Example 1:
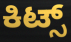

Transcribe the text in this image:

ಕಿಟ್ಸ್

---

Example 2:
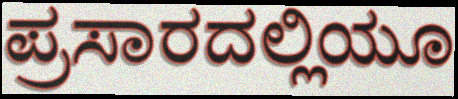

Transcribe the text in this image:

ಪ್ರಸಾರದಲ್ಲಿಯೂ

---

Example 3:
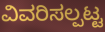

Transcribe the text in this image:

ವಿವರಿಸಲ್ಪಟ್ಟ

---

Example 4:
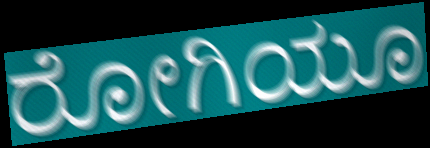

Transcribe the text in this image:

ರೋಗಿಯೂ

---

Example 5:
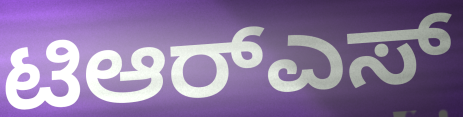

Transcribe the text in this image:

ಟಿಆರ್‌ಎಸ್